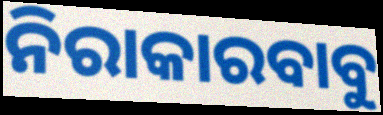
ନିରାକାରବାବୁ